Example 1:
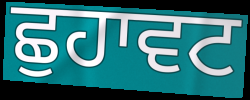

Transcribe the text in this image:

ਛੁਹਾਵਟ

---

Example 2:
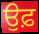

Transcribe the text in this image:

ਉਫ਼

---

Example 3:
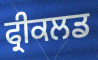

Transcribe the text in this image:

ਫ੍ਰੀਕਲਡ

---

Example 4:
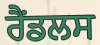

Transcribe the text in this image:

ਰੈਂਡਲਸ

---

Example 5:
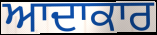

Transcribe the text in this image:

ਆਦਾਕਾਰ